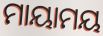
ମାୟାମୟ